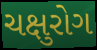
ચક્ષુરોગ